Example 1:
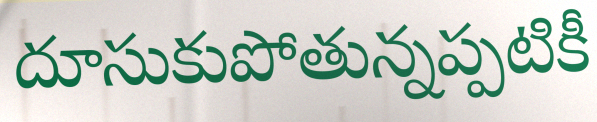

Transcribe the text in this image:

దూసుకుపోతున్నప్పటికీ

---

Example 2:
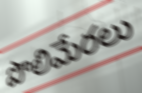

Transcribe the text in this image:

పొలిమేరలు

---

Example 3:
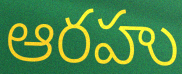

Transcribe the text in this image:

ఆరహు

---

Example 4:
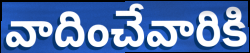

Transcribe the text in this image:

వాదించేవారికి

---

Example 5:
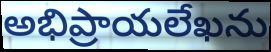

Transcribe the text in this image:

అభిప్రాయలేఖను